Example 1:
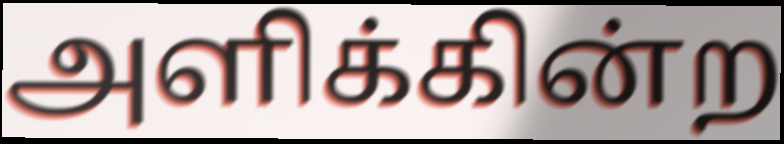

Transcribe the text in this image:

அளிக்கின்ற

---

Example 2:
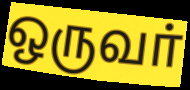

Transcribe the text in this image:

ஒருவர்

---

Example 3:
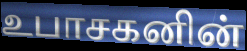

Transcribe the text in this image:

உபாசகனின்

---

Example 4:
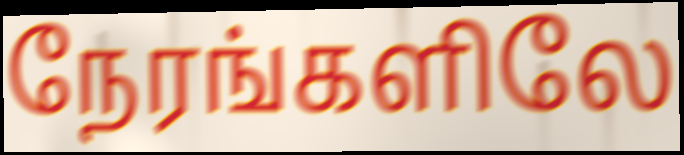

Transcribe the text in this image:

நேரங்களிலே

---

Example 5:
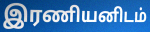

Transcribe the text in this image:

இரணியனிடம்